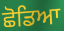
ਛੋਡਿਆ